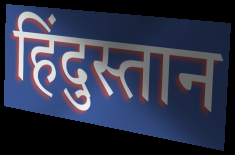
हिंदुस्तान